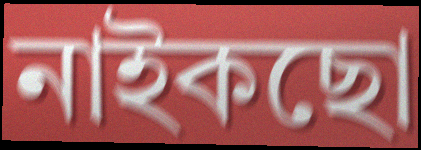
নাইকছো